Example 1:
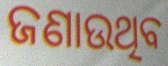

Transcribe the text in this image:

ଜଣାଉଥିବ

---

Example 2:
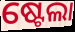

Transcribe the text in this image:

ଷ୍ଟେଲା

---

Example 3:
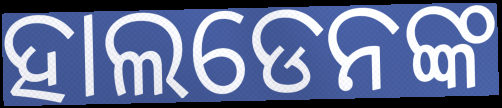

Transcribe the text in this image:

ହାଲଡେନଙ୍କ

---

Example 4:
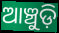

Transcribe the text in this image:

ଆଞ୍ଚୁଡ଼ି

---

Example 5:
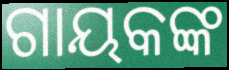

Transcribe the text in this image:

ଗାୟକଙ୍କ